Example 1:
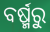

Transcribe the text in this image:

ବର୍ଷ୍ମରୁ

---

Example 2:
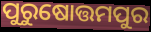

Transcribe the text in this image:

ପୁରୁଷୋତ୍ତମପୁର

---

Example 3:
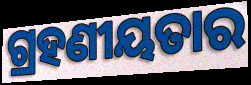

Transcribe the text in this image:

ଗ୍ରହଣୀୟତାର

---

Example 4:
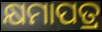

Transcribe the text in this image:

କ୍ଷମାପତ୍ର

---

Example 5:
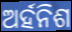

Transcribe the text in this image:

ଅର୍ହନିଶ